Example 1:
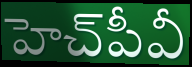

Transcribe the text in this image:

హెచ్‌పీవీ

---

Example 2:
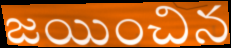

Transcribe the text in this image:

జయించిన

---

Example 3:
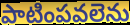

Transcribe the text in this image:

పాటింపవలెను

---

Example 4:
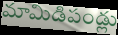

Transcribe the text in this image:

మామిడిపండ్లు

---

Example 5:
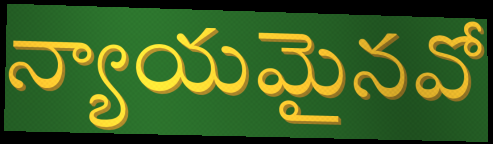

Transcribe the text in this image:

న్యాయమైనవో